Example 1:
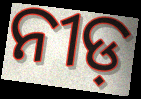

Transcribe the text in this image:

ନୀଡ଼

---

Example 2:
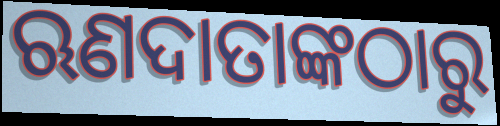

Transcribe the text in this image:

ଋଣଦାତାଙ୍କଠାରୁ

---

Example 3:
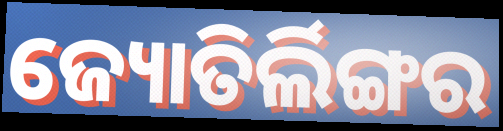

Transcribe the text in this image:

ଜ୍ୟୋତିର୍ଲିଙ୍ଗର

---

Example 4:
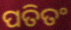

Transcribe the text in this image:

ପତିତଂ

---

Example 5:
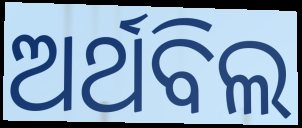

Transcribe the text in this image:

ଅର୍ଥବିଲ